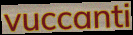
vuccanti